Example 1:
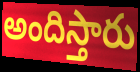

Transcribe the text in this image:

అందిస్తారు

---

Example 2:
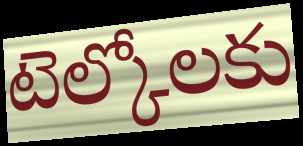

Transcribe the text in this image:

టెల్కోలకు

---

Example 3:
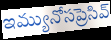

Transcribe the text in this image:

ఇమ్యునోసప్రెసివ్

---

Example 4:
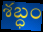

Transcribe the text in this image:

శబ్ధం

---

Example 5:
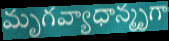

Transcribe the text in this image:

మృగవ్యాధాన్మృగా